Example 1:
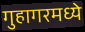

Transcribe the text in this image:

गुहागरमध्ये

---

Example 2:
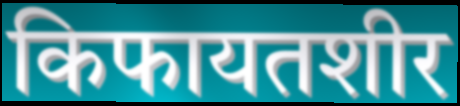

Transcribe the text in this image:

किफायतशीर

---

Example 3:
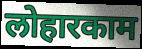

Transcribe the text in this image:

लोहारकाम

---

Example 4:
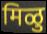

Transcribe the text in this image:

मिळु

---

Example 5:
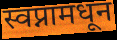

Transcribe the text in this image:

स्वप्नामधून